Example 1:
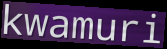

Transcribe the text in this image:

kwamuri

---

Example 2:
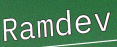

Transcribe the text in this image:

Ramdev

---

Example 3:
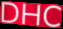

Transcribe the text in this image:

DHC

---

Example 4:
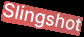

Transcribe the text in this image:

Slingshot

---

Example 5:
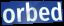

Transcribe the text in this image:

orbed